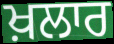
ਖ਼ਲਾਰ